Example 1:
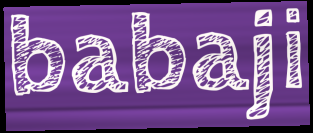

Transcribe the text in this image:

babaji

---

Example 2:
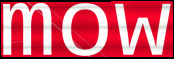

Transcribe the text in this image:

mow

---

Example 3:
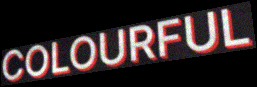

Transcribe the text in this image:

COLOURFUL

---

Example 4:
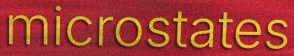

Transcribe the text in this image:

microstates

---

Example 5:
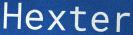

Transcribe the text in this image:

Hexter